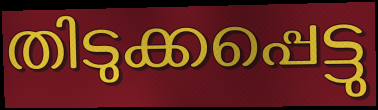
തിടുക്കപ്പെട്ടു